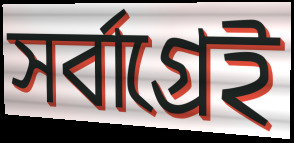
সর্বাগ্রেই